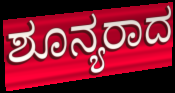
ಶೂನ್ಯರಾದ